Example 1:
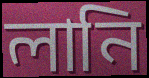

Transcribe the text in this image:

লানি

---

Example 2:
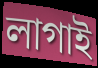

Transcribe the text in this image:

লাগাই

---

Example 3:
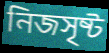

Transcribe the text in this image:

নিজসৃষ্ট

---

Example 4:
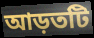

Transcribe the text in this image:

আড়তটি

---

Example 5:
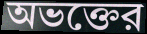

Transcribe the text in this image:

অভক্তের